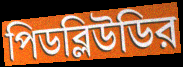
পিডব্লিউডির